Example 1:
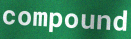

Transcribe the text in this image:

compound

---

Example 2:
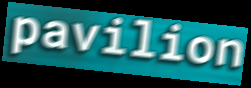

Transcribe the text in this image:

pavilion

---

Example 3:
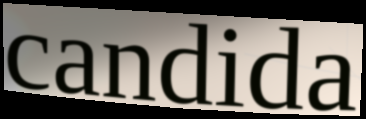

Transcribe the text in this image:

candida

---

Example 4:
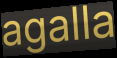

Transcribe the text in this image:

agalla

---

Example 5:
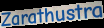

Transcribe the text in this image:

Zarathustra